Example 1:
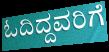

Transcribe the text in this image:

ಓದಿದ್ದವರಿಗೆ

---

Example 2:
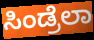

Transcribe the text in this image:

ಸಿಂಡ್ರೆಲಾ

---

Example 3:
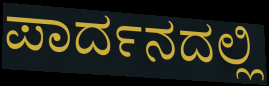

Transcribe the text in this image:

ಪಾರ್ದನದಲ್ಲಿ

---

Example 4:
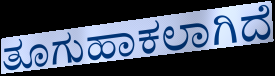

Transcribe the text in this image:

ತೂಗುಹಾಕಲಾಗಿದೆ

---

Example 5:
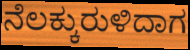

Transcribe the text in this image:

ನೆಲಕ್ಕುರುಳಿದಾಗ